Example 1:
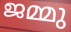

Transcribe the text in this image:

ജമ്മു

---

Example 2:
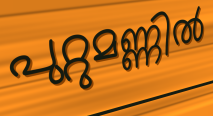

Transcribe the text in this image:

പുറ്റുമണ്ണിൽ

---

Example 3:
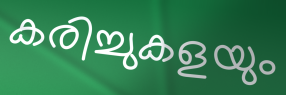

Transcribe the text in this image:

കരിച്ചുകളയും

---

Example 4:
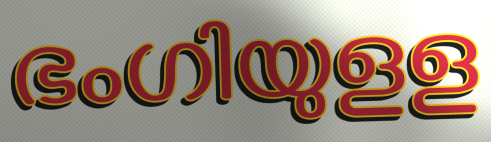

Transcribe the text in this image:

ഭംഗിയുളള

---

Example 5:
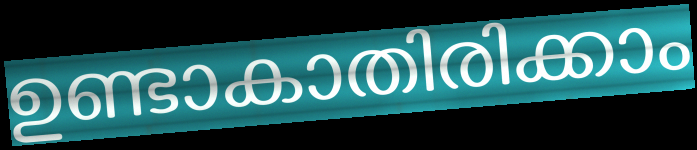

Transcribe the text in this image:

ഉണ്ടാകാതിരിക്കാം